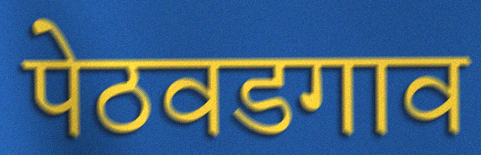
पेठवडगाव